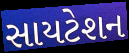
સાયટેશન